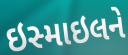
ઇસ્માઇલને